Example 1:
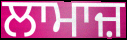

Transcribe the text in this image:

ਲਾਮਾਜ਼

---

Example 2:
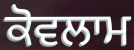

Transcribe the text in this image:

ਕੋਵਲਾਮ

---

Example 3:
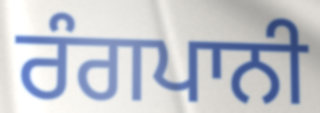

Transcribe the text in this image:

ਰੰਗਪਾਨੀ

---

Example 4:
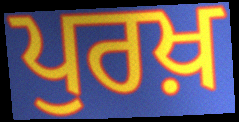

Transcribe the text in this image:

ਪੁਰਖ਼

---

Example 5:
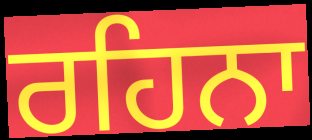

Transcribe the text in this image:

ਰਹਿਨਾ